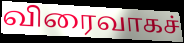
விரைவாகச்